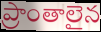
ప్రాంతాలైన